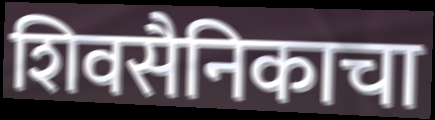
शिवसैनिकाचा